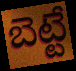
బెట్టే